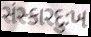
સંસ્કારદુઃખ